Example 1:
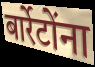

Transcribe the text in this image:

बार्रेटोंना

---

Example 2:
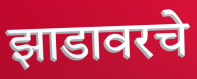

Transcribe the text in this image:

झाडावरचे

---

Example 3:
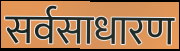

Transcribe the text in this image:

सर्वसाधारण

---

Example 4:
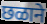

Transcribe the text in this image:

छळाने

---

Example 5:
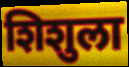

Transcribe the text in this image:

शिशुला